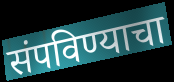
संपविण्याचा